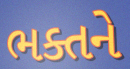
ભક્તને